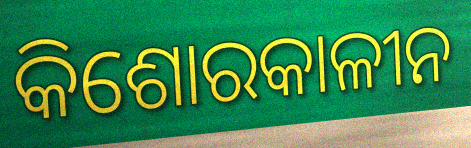
କିଶୋରକାଳୀନ